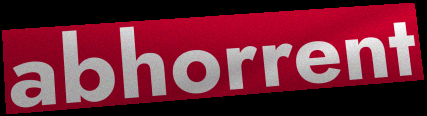
abhorrent